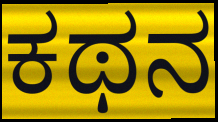
ಕಥನ